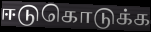
ஈடுகொடுக்க